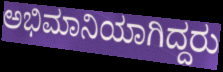
ಅಭಿಮಾನಿಯಾಗಿದ್ದರು